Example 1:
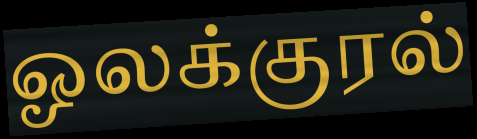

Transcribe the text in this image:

ஓலக்குரல்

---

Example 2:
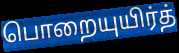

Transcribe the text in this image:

பொறையுயிர்த்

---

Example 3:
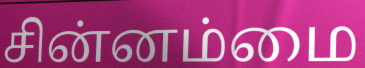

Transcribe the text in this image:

சின்னம்மை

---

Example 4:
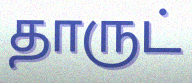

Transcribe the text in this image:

தாருட்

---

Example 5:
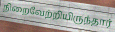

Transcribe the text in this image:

நிறைவேற்றியிருந்தார்